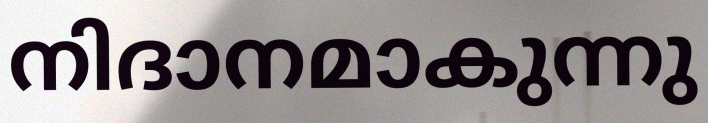
നിദാനമാകുന്നു